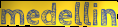
medellin